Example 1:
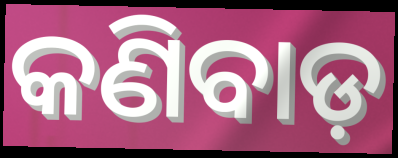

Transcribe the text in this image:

କଣିବାଡ଼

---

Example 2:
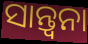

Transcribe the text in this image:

ସାନ୍ତ୍ଵନା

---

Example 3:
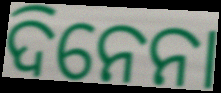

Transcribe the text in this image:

ଦିନେନା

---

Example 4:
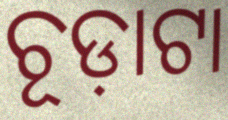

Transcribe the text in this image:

ଚୂଡ଼ାଟା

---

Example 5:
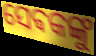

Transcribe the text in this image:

ସେଵକଙ୍କୁ